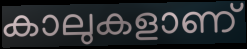
കാലുകളാണ്